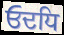
ਓਦਧਿ